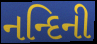
નન્દિની